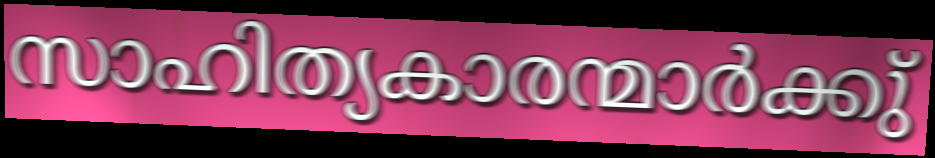
സാഹിത്യകാരന്മാർക്കു്